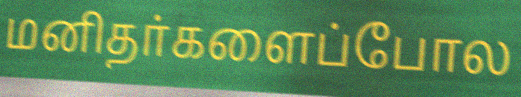
மனிதர்களைப்போல